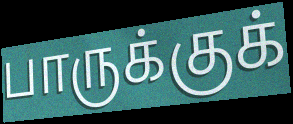
பாருக்குக்